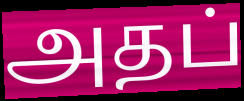
அதப்